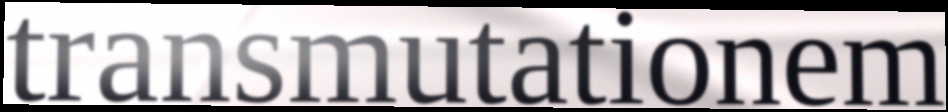
transmutationem